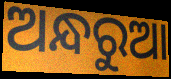
ଅନ୍ଧରୁଆ